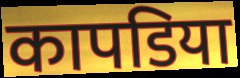
कापडिया